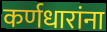
कर्णधारांना